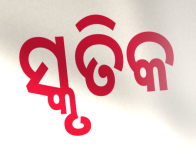
ସ୍କୃତିକ